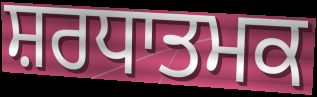
ਸ਼ਰਧਾਤਮਕ